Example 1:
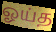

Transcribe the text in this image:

ஓய்த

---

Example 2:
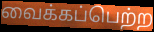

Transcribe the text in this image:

வைக்கப்பெற்ற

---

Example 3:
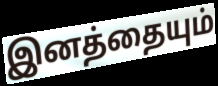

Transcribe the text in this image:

இனத்தையும்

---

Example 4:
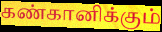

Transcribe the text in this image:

கண்கானிக்கும்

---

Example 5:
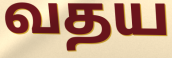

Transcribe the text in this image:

வதய